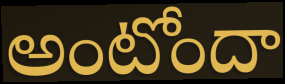
అంటోందా